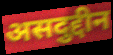
असदुद्दीन